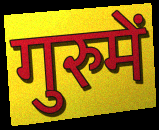
गुरुमें